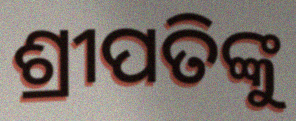
ଶ୍ରୀପତିଙ୍କୁ